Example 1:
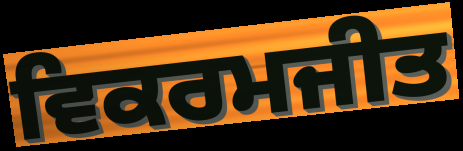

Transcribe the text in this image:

ਵਿਕਰਮਜੀਤ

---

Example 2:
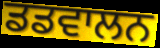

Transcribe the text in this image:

ਡਡਵਾਲਨ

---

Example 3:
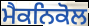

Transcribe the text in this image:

ਮੈਕਨਿਕੋਲ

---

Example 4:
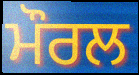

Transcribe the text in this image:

ਮੌਰਲ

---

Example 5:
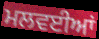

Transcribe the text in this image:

ਮਲਵਈਆਂ